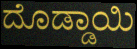
ದೊಡ್ಡಾಯಿ